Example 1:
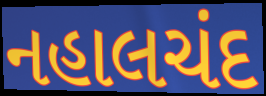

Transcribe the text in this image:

નહાલચંદ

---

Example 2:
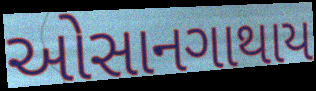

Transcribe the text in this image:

ઓસાનગાથાય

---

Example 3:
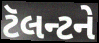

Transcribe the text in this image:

ટૅલન્ટને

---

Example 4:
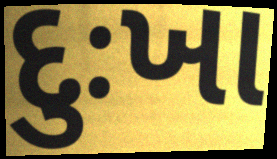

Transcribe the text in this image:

દુઃખા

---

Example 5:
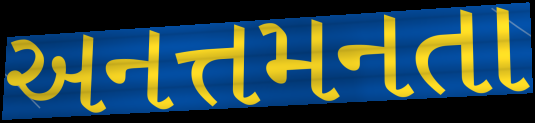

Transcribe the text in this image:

અનત્તમનતા